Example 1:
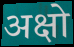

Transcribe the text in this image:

अक्षो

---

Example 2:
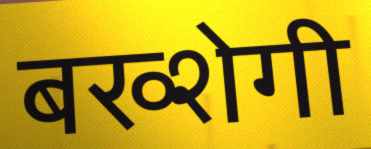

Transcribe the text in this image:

बख्शेगी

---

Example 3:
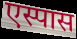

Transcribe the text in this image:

एस्पास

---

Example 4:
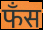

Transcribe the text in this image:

फँस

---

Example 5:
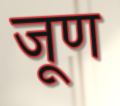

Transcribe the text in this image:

जूण